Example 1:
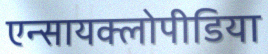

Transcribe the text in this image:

एन्सायक्लोपीडिया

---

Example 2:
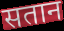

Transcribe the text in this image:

सतान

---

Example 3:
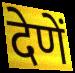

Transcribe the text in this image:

देणें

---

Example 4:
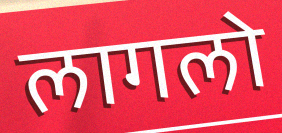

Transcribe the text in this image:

लागलो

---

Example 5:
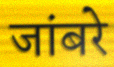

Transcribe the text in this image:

जांबरे